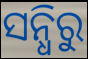
ସନ୍ଧିରୁ